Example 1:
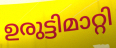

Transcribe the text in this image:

ഉരുട്ടിമാറ്റി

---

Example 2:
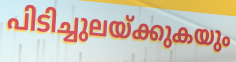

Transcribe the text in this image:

പിടിച്ചുലയ്ക്കുകയും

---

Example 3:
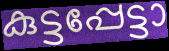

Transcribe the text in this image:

കുട്ടപ്പേട്ടാ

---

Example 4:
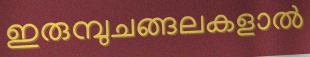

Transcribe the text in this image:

ഇരുമ്പുചങ്ങലകളാൽ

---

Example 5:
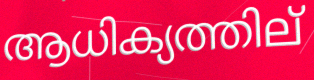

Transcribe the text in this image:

ആധിക്യത്തില്